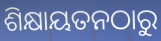
ଶିକ୍ଷାୟତନଠାରୁ